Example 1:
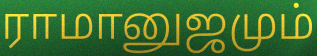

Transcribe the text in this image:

ராமானுஜமும்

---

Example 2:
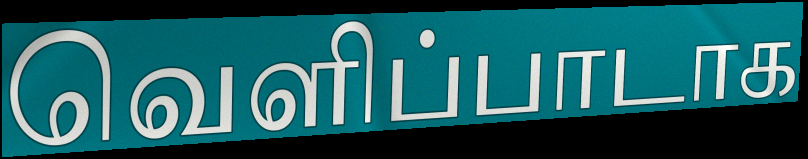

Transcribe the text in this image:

வெளிப்பாடாக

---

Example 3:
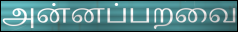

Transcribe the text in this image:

அன்னப்பறவை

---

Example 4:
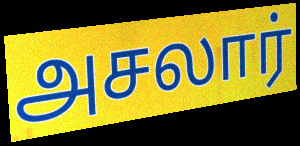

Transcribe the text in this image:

அசலார்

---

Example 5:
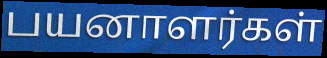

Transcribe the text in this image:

பயனாளர்கள்